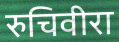
रुचिवीरा